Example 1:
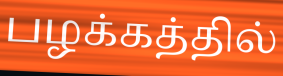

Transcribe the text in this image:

பழக்கத்தில்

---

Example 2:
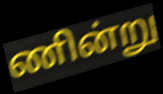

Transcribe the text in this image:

ணின்று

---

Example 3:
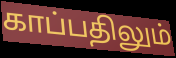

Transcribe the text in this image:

காப்பதிலும்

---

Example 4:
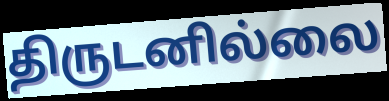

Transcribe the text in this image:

திருடனில்லை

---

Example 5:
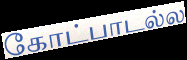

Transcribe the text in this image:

கோட்பாடல்ல